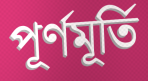
পূর্ণমূর্তি